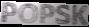
POPSK